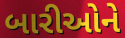
બારીઓને